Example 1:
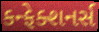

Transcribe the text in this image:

કન્ફેક્શનર્સ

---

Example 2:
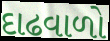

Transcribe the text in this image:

દાઢવાળો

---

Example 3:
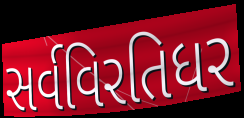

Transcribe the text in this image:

સર્વવિરતિધર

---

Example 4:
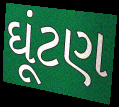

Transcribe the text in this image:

ઘૂંટણ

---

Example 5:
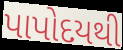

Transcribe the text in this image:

પાપોદયથી